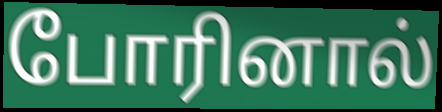
போரினால்